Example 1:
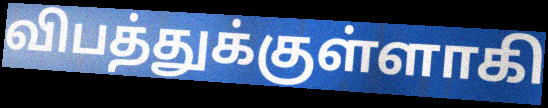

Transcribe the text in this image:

விபத்துக்குள்ளாகி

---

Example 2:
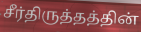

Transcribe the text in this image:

சீர்திருத்தத்தின்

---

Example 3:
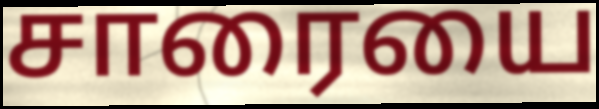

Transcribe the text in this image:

சாரையை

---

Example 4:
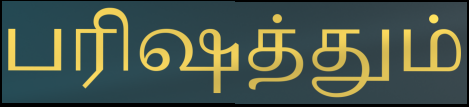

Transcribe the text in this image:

பரிஷத்தும்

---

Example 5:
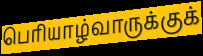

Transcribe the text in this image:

பெரியாழ்வாருக்குக்